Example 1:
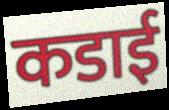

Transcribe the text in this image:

कडाई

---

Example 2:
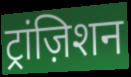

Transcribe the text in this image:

ट्रांज़िशन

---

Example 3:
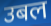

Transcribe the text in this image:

उबल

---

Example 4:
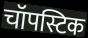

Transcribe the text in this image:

चॉपस्टिक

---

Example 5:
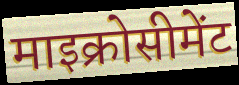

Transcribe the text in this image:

माइक्रोसीमेंट